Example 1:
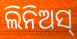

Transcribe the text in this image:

ଲିନିଅସ୍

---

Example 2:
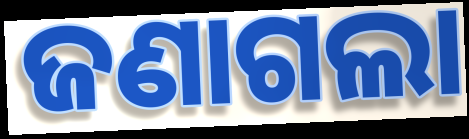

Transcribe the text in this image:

ଜଣାଗଲା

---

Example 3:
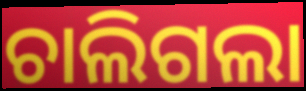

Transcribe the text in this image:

ଚାଲିଗଲା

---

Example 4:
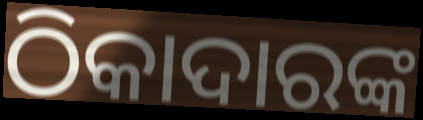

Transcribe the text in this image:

ଠିକାଦାରଙ୍କ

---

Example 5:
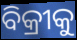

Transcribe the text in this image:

ବିକ୍ରୀକୁ